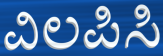
ವಿಲಪಿಸಿ